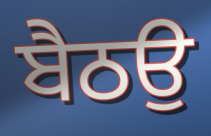
ਬੈਠਉ